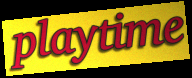
playtime